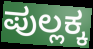
ಪುಲ್ಲಕ್ಕ